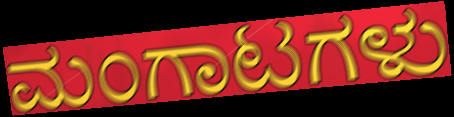
ಮಂಗಾಟಗಳು